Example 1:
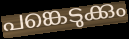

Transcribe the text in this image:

പങ്കെടുക്കും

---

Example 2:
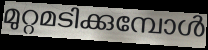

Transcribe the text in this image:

മുറ്റമടിക്കുമ്പോൾ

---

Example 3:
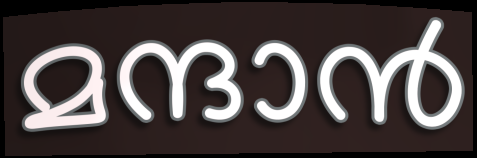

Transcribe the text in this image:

മന്ദാൻ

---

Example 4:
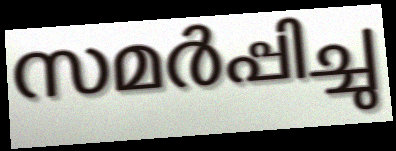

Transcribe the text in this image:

സമർപ്പിച്ചു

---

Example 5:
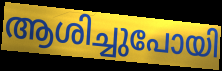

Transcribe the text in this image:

ആശിച്ചുപോയി